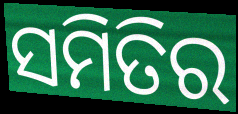
ସମିତିର